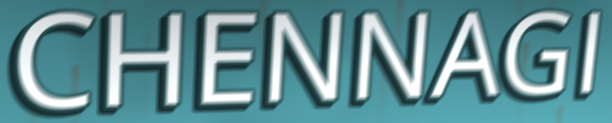
CHENNAGI